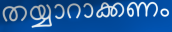
തയ്യാറാക്കണം